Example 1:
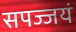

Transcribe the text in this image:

सपज्जयं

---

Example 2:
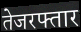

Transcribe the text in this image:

तेजरफ्तार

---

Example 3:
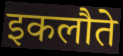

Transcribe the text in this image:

इकलौते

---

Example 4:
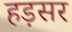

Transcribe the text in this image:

हड़सर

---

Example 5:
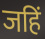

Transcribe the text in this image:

जहिं